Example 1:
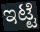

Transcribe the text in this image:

ಇಟ್ಟೆ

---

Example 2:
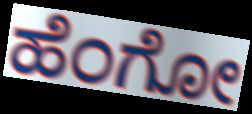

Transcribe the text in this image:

ಹೆಂಗೋ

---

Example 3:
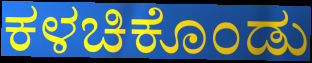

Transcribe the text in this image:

ಕಳಚಿಕೊಂಡು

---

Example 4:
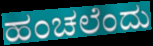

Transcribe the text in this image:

ಹಂಚಲೆಂದು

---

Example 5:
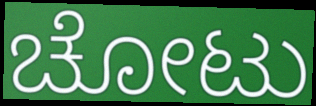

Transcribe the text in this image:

ಚೋಟು